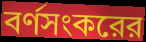
বর্ণসংকরের